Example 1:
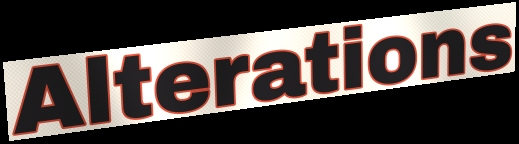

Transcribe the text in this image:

Alterations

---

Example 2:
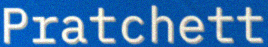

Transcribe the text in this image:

Pratchett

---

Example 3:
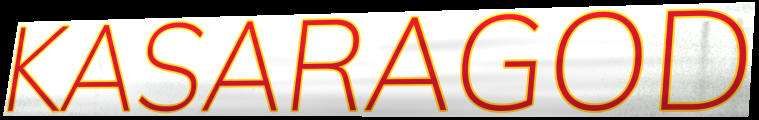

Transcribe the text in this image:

KASARAGOD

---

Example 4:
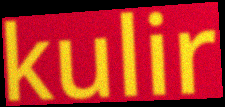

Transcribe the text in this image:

kulir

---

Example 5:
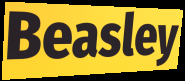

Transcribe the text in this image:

Beasley